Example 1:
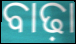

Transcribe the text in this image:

ବାଢ଼ା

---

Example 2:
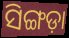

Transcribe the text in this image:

ସିଙ୍ଗଡ଼ା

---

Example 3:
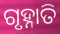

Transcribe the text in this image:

ଗୃହ୍ନାତି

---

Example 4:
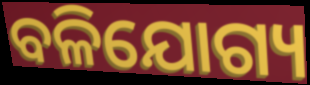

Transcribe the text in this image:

ବଳିଯୋଗ୍ୟ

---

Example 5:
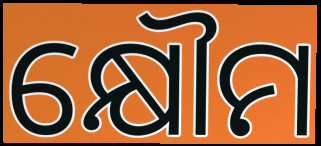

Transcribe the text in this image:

କ୍ଷୌମ